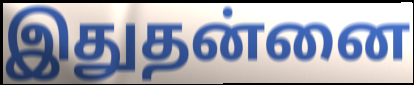
இதுதன்னை